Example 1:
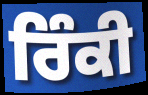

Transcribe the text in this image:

ਰਿੰਕੀ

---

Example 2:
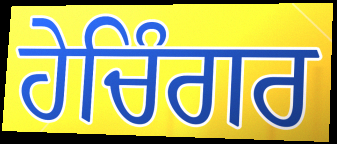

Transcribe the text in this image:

ਹੇਚਿੰਗਰ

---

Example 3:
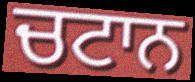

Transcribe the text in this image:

ਚਟਾਨ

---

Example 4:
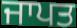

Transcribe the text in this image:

ਜਾਪਤ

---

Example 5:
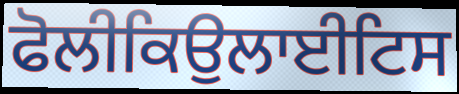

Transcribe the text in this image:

ਫੋਲੀਕਿਉਲਾਈਟਿਸ